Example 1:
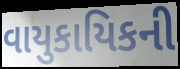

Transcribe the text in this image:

વાયુકાયિકની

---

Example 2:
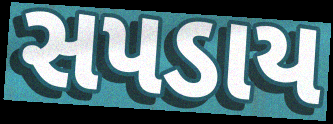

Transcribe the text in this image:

સપડાય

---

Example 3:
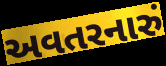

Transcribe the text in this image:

અવતરનારું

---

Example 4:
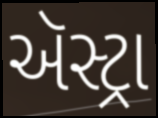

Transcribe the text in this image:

ઍસ્ટ્રા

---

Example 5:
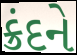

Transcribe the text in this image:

ક્રંદને